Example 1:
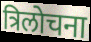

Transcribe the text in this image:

त्रिलोचना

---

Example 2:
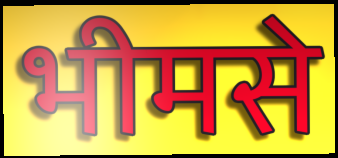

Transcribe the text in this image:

भीमसे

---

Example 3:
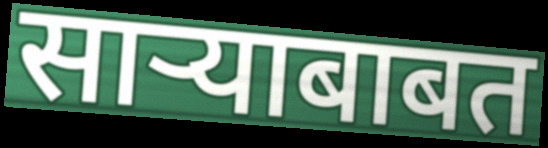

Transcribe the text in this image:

साऱ्याबाबत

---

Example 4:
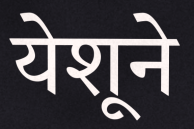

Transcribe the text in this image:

येशूने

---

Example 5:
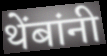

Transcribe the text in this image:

थेंबांनी